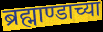
ब्रह्माण्डाच्या